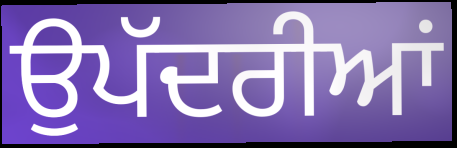
ਉਪੱਦਰੀਆਂ